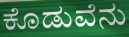
ಕೊಡುವೆನು